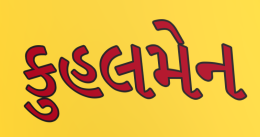
કુહલમેન